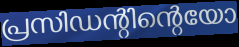
പ്രസിഡന്റിന്റെയോ